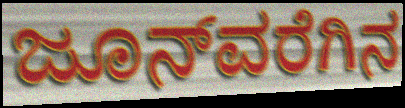
ಜೂನ್‌ವರೆಗಿನ